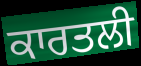
ਕਾਰਤਲੀ